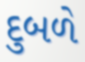
દુબળે